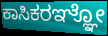
ಕಾಸಿಕರಞ್ಞೋ